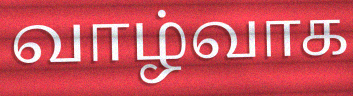
வாழ்வாக